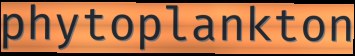
phytoplankton